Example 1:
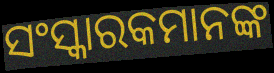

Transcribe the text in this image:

ସଂସ୍କାରକମାନଙ୍କ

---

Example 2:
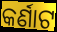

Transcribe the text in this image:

କର୍ଣାଟ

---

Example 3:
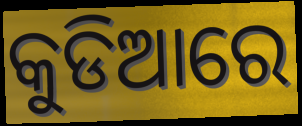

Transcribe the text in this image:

କୁଡିଆରେ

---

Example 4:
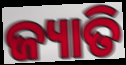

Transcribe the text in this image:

ଜ୍ୟାତି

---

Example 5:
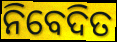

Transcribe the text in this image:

ନିବେଦିତ